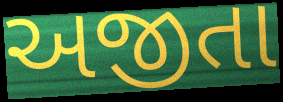
અજીતા